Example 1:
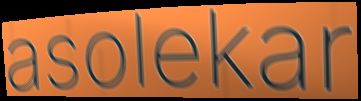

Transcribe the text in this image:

asolekar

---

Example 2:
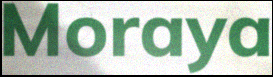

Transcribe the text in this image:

Moraya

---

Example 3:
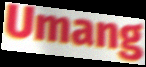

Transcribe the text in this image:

Umang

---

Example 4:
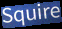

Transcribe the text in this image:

Squire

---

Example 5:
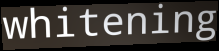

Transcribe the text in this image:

whitening